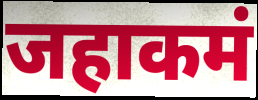
जहाकमं